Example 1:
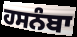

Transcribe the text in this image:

ਹਸਨੰਬਾ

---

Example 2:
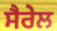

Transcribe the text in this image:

ਸੈਰੇਲ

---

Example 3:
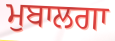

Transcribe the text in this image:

ਮੁਬਾਲਗਾ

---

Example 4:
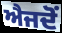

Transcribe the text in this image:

ਐਜਦੋਂ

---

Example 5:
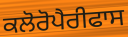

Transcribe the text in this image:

ਕਲੋਰੋਪੈਰੀਫਾਸ